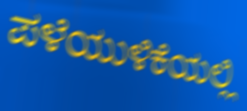
ಪಳೆಯುಳಿಕೆಯಲ್ಲಿ